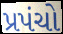
પ્રપંચો